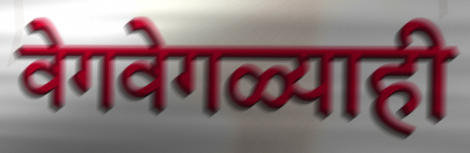
वेगवेगळ्याही